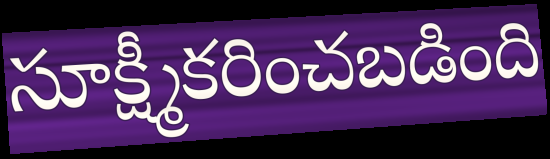
సూక్ష్మీకరించబడింది